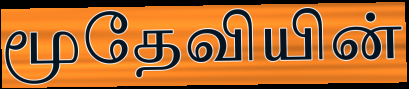
மூதேவியின்